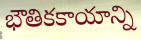
భౌతికకాయాన్ని